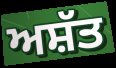
ਅਸ਼ੱਤ